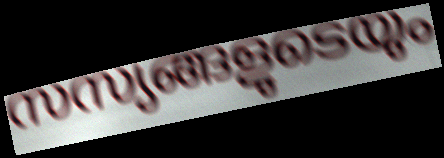
സസ്യങ്ങളുടെയും